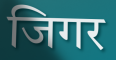
जिगर